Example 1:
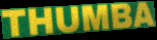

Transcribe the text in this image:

THUMBA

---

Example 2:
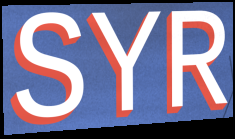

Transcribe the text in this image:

SYR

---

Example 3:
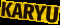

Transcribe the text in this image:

KARYU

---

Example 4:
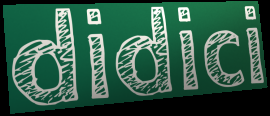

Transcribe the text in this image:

didici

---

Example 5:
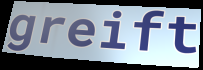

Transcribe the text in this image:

greift